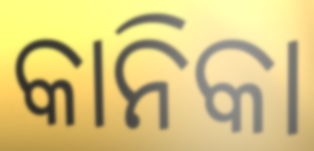
କାନିକା